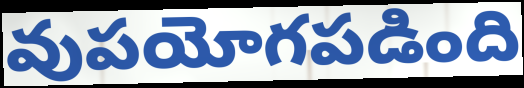
వుపయోగపడింది